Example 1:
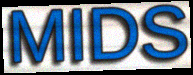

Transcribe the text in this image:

MIDS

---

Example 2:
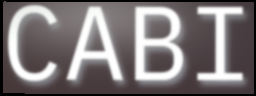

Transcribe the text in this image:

CABI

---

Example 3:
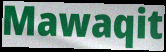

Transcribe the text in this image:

Mawaqit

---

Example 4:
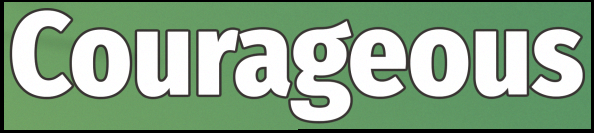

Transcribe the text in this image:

Courageous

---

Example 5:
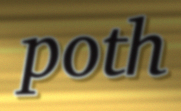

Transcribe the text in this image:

poth